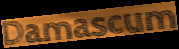
Damascum